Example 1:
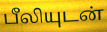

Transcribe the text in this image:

பீலியுடன்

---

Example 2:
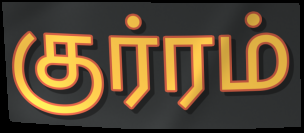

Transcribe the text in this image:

குர்ரம்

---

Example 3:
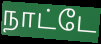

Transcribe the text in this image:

நாட்டே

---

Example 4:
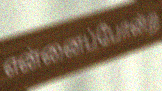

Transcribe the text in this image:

என்னைப்போன்ற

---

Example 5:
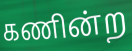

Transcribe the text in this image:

கணின்ற